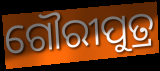
ଗୌରୀପୁତ୍ର